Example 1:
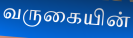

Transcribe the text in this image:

வருகையின்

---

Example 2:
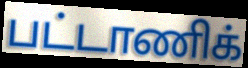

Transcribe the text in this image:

பட்டாணிக்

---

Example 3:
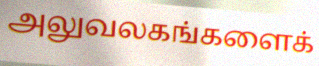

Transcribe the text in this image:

அலுவலகங்களைக்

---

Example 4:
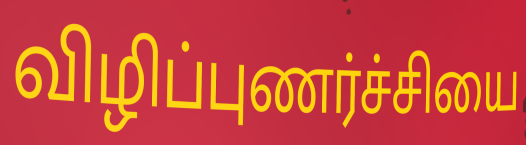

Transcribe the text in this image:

விழிப்புணர்ச்சியை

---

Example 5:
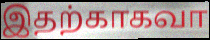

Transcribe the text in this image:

இதற்காகவா